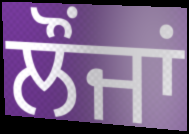
ਲੌਂਜਾਂ